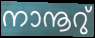
നാനൂറു്